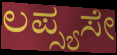
ಲಪ್ಸ್ಯಸೇ